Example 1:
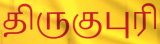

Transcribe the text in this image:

திருகுபுரி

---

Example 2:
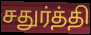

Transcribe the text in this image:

சதுர்த்தி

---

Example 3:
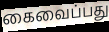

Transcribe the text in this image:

கைவைப்பது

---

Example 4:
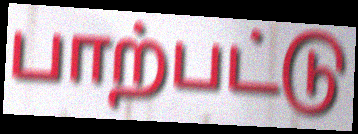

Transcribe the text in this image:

பாற்பட்டு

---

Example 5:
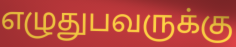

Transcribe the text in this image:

எழுதுபவருக்கு